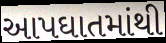
આપઘાતમાંથી